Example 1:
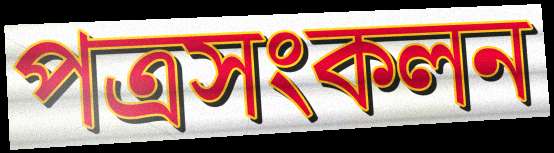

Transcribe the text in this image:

পত্রসংকলন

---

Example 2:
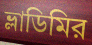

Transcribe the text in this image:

ভ্লাডিমির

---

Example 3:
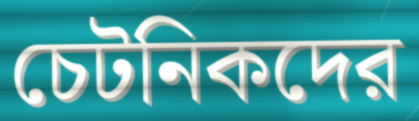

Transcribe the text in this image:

চেটনিকদের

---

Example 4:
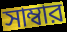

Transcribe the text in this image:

সাম্বার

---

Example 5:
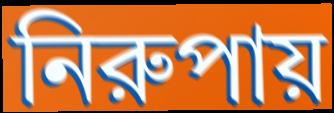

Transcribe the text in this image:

নিরুপায়